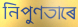
নিপুণতাৰে